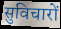
सुविचारों